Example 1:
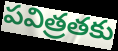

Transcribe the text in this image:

పవిత్రతకు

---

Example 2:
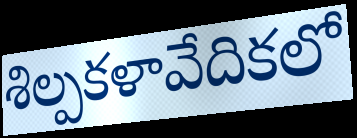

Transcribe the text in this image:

శిల్పకళావేదికలో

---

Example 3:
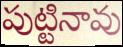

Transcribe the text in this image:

పుట్టినావు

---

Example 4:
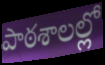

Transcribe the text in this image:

పాఠశాలల్లో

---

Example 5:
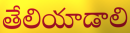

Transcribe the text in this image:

తేలియాడాలి